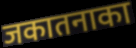
जकातनाका